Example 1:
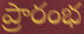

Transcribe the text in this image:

ప్రారంభ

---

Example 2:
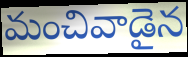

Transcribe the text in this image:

మంచివాడైన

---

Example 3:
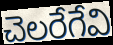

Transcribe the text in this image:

చెలరేగేవి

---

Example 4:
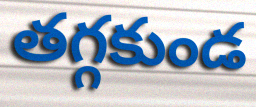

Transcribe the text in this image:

తగ్గకుండ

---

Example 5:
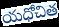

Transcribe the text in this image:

యధోచిత